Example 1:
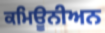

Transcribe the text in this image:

ਕਮਿਊਨੀਅਨ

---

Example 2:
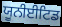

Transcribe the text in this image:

ਯੂਨੀਈਟਿਡ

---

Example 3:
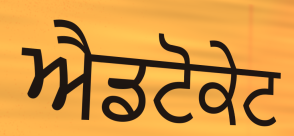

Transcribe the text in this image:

ਐਡਟੋਕੇਟ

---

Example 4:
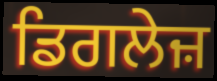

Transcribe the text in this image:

ਡਿਗਲੇਜ਼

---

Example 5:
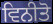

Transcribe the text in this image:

ਵਿਨੀਤੋ